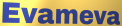
Evameva